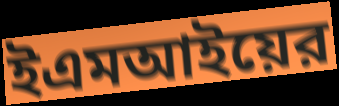
ইএমআইয়ের